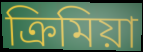
ক্রিমিয়া